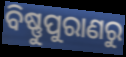
ବିଷ୍ଣୁପୁରାଣରୁ